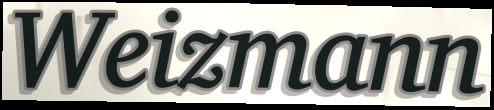
Weizmann